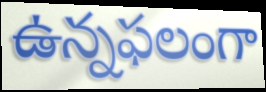
ఉన్నఫలంగా